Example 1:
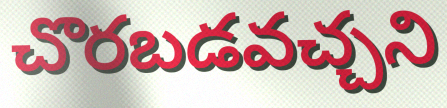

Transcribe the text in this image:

చొరబడవచ్చని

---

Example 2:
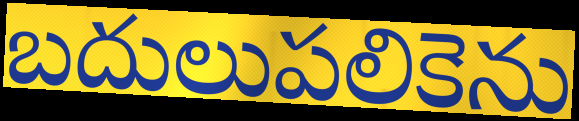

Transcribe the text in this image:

బదులుపలికెను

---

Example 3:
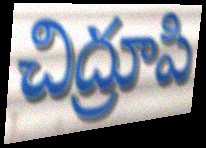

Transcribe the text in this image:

చిద్రూపి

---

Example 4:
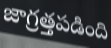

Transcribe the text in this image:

జాగ్రత్తపడింది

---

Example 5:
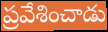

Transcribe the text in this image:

ప్రవేశించాడు